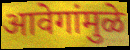
आवेगांमुळे